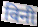
विनी